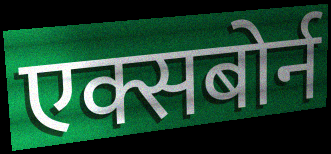
एक्सबोर्न